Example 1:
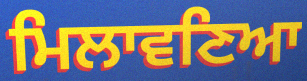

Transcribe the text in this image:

ਮਿਲਾਵਣਿਆ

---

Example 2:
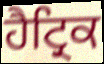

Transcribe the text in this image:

ਹੈਟ੍ਰਿਕ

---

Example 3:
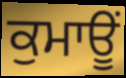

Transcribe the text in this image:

ਕੁਮਾਊਂ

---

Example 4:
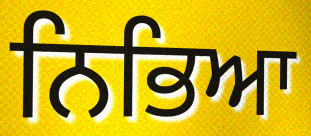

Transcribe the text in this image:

ਨਿਭਿਆ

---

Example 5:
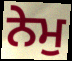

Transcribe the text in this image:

ਨੇਮੁ